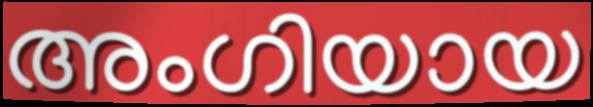
അംഗിയായ